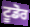
ਟੂਡੋਰ